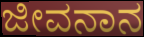
ಜೀವನಾನ